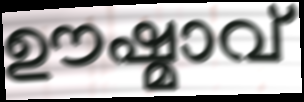
ഊഷ്മാവ്